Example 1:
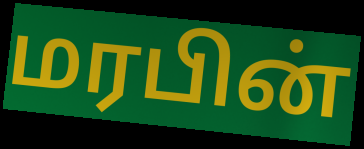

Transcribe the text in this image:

மரபின்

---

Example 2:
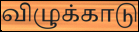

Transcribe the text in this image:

விழுக்காடு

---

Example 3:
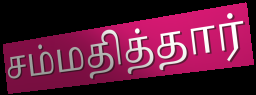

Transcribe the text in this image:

சம்மதித்தார்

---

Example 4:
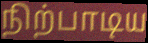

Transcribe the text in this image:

நிற்பாடிய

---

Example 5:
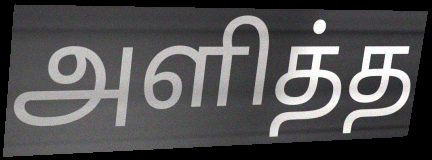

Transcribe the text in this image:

அளித்த